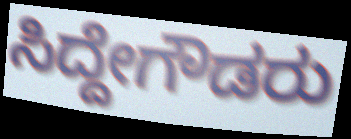
ಸಿದ್ದೇಗೌಡರು